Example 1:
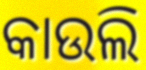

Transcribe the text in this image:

କାଉଲି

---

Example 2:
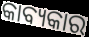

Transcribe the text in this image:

କାବ୍ୟକାର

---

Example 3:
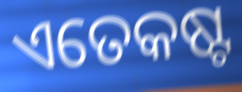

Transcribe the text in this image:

ଏତେକଷ୍ଟ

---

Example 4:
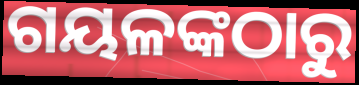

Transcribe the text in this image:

ଗୟଳଙ୍କଠାରୁ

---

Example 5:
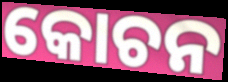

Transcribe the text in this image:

କୋଚନ